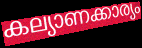
കല്യാണക്കാര്യം